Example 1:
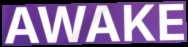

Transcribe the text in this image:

AWAKE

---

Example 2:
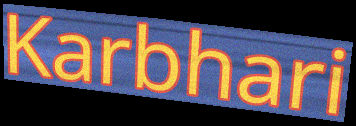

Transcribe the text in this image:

Karbhari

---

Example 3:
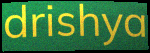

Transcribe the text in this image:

drishya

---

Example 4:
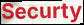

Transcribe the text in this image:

Securty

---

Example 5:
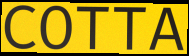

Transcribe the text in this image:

COTTA